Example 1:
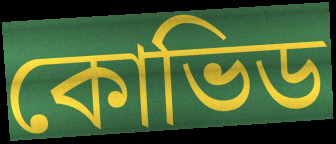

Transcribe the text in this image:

কোভিড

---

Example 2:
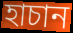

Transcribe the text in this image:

হাচান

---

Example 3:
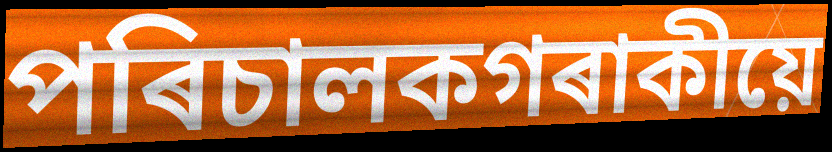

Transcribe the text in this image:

পৰিচালকগৰাকীয়ে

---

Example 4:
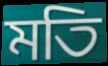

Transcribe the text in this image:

মতি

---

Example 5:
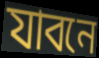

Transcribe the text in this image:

যাবনে